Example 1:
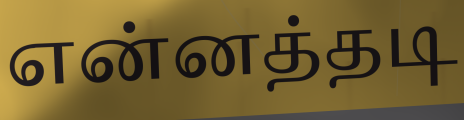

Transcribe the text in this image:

என்னத்தடி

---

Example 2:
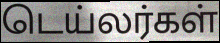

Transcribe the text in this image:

டெய்லர்கள்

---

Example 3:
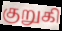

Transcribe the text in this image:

குறுகி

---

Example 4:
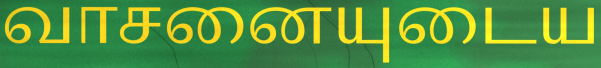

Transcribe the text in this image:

வாசனையுடைய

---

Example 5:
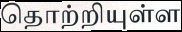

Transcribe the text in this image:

தொற்றியுள்ள